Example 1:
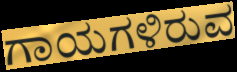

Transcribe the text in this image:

ಗಾಯಗಳಿರುವ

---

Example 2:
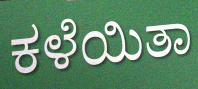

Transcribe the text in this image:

ಕಳೆಯಿತಾ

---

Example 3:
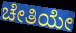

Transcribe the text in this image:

ಚೇತಿಯೇ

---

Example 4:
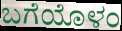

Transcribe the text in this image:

ಬಗೆಯೊಳಂ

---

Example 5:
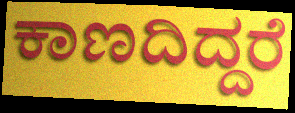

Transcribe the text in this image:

ಕಾಣದಿದ್ದರೆ